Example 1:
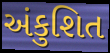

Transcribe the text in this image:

અંકુશિત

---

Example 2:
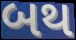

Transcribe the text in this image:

બથ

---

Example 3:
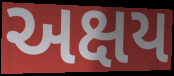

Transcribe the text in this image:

અક્ષય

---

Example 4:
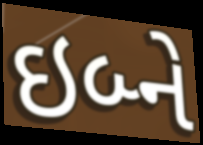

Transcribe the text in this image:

ઇબ્ને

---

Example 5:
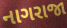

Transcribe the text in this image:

નાગરાજા